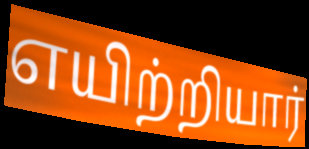
எயிற்றியார்